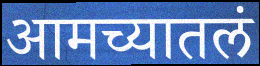
आमच्यातलं